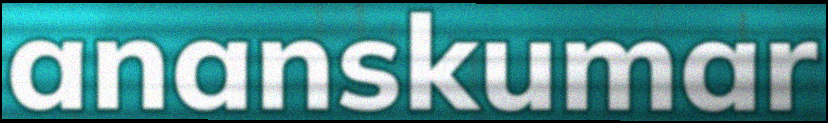
ananskumar